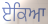
ਏਕਿਆ